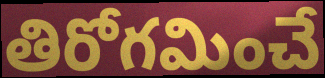
తిరోగమించే